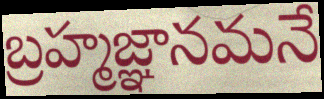
బ్రహ్మజ్ఞానమనే